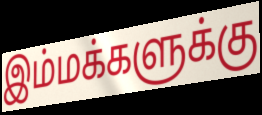
இம்மக்களுக்கு